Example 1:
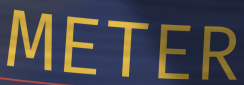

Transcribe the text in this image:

METER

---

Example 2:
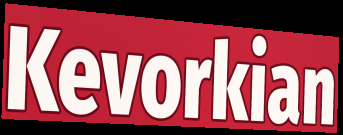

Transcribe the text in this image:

Kevorkian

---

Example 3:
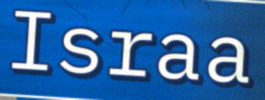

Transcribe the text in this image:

Israa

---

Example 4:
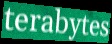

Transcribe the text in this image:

terabytes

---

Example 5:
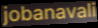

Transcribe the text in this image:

jobanavali